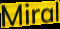
Miral